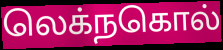
லெக்நகொல்